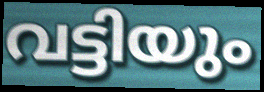
വട്ടിയും